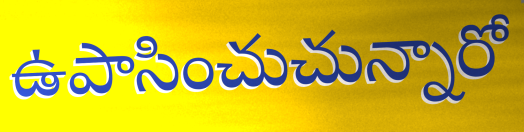
ఉపాసించుచున్నారో